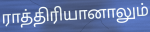
ராத்திரியானாலும்